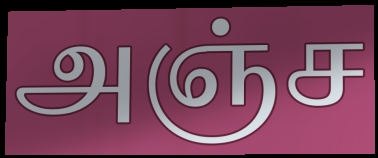
அஞ்ச